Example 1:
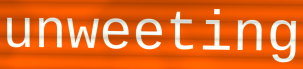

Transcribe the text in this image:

unweeting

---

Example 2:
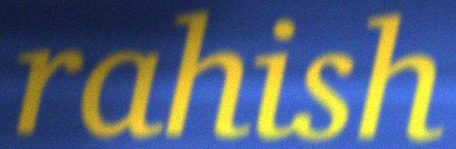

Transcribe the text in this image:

rahish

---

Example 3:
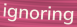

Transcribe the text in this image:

ignoring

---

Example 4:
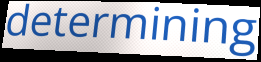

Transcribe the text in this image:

determining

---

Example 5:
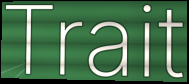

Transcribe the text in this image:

Trait